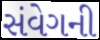
સંવેગની